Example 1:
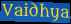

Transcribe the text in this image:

Vaidhya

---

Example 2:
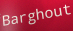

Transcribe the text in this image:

Barghout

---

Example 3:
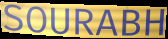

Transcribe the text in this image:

SOURABH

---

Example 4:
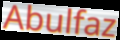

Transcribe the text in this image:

Abulfaz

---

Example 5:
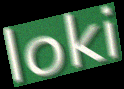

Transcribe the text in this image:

loki